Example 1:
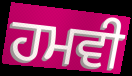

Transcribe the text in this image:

ਹਮਵੀ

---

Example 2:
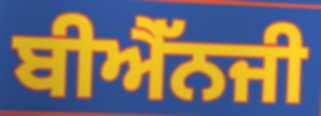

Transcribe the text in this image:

ਬੀਐੱਨਜੀ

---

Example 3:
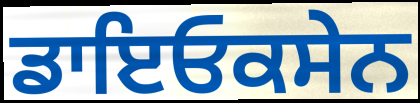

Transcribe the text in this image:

ਡਾਇਓਕਸੇਨ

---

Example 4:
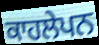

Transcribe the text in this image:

ਕਾਹਲੇਪਨ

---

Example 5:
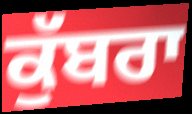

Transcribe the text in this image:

ਕੁੱਬਰਾ